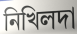
নিখিলদা